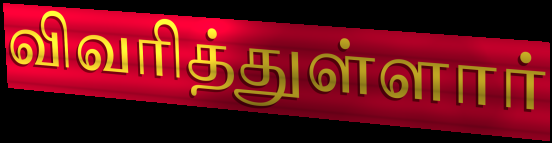
விவரித்துள்ளார்